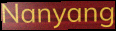
Nanyang